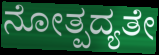
ನೋತ್ಪದ್ಯತೇ